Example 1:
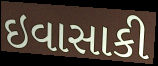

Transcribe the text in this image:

ઇવાસાકી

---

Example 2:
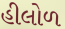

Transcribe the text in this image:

હીલોળ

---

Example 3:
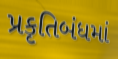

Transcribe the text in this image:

પ્રકૃતિબંધમાં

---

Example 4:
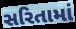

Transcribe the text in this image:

સરિતામાં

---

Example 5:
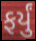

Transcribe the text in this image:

ફર્યું